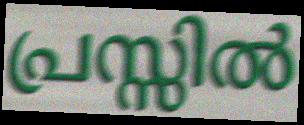
പ്രസ്സിൽ